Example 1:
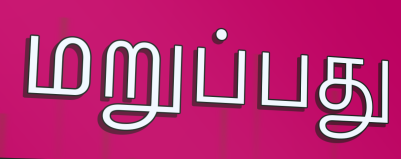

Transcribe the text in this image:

மறுப்பது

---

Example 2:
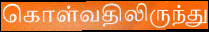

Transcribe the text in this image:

கொள்வதிலிருந்து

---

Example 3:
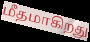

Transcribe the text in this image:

மீதமாகிறது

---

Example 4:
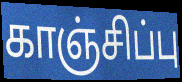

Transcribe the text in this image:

காஞ்சிப்பு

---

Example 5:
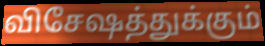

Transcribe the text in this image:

விசேஷத்துக்கும்